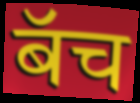
बॅच